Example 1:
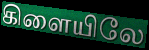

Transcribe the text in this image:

கிளையிலே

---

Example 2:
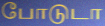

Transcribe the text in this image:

போடுடா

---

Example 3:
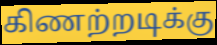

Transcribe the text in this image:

கிணற்றடிக்கு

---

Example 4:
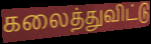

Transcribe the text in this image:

கலைத்துவிட்டு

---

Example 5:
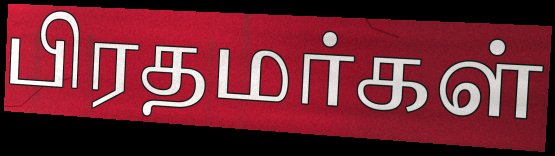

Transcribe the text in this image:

பிரதமர்கள்